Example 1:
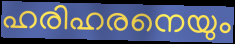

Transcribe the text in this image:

ഹരിഹരനെയും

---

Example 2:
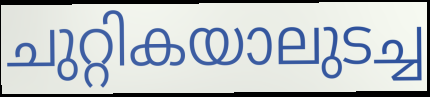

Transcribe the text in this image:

ചുറ്റികയാലുടച്ച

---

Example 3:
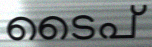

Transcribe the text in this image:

ടൈപ്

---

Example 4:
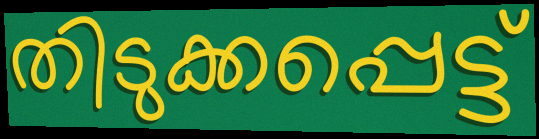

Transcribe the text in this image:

തിടുക്കപ്പെട്ട്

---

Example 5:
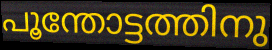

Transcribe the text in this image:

പൂന്തോട്ടത്തിനു